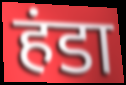
हंडा